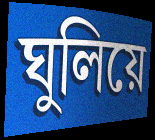
ঘুলিয়ে